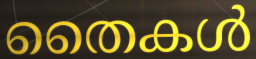
തൈകൾ